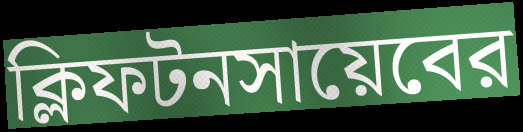
ক্লিফটনসায়েবের